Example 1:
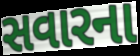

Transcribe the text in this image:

સવારના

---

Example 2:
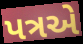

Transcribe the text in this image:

પત્રએ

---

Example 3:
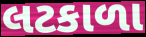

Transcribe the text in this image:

લટકાળા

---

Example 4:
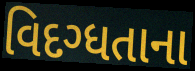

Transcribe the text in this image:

વિદગ્ધતાના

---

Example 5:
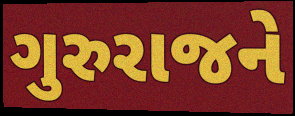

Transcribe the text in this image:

ગુરુરાજને